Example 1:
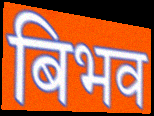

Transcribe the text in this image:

बिभव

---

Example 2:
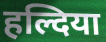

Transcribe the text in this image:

हल्दिया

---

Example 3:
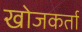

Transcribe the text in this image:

खोजकर्ता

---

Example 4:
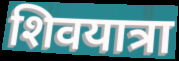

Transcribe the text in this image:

शिवयात्रा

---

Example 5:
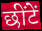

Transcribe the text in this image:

छींटें